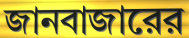
জানবাজারের